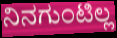
ನಿನಗುಂಟಿಲ್ಲ